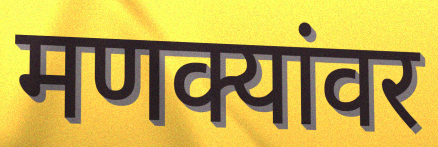
मणक्यांवर